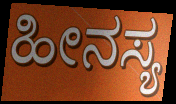
ಹೀನಸ್ಯ